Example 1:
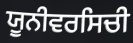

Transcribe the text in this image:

ਯੂਨੀਵਰਸਿਚੀ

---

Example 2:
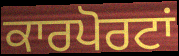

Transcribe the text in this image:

ਕਾਰਪੋਰਟਾਂ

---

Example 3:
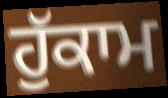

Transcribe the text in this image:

ਹੁੱਕਾਮ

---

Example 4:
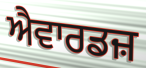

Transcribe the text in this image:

ਐਵਾਰਡਜ਼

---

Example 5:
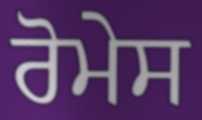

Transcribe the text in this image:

ਰੋਮੇਸ